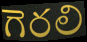
గెరలి